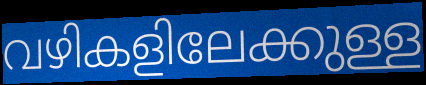
വഴികളിലേക്കുള്ള